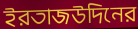
ইরতাজউদিনের